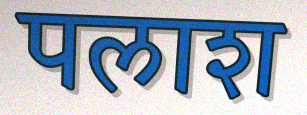
पलाश